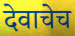
देवाचेच